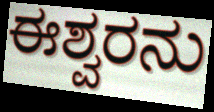
ಈಶ್ವರನು